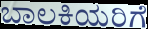
ಬಾಲಕಿಯರಿಗೆ